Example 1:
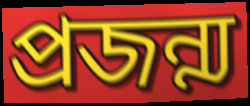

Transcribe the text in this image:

প্ৰজন্ম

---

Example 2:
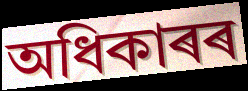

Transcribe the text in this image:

অধিকাৰৰ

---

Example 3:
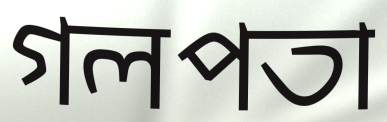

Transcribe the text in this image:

গলপতা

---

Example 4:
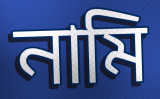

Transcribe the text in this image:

নামি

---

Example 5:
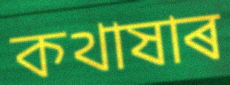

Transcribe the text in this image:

কথাষাৰ